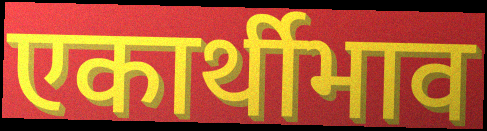
एकार्थीभाव